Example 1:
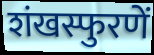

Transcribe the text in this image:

शंखस्फुरणें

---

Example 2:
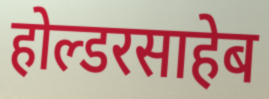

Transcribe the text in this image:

होल्डरसाहेब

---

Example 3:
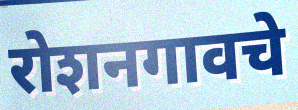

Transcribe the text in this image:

रोशनगावचे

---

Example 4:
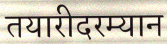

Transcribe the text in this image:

तयारीदरम्यान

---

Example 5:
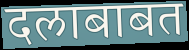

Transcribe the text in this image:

दलाबाबत